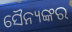
ସୈନ୍ୟଙ୍କର